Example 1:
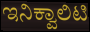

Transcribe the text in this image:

ಇನಿಕ್ವಾಲಿಟಿ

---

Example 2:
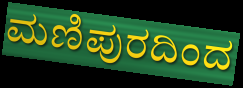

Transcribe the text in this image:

ಮಣಿಪುರದಿಂದ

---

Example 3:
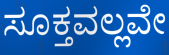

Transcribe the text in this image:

ಸೂಕ್ತವಲ್ಲವೇ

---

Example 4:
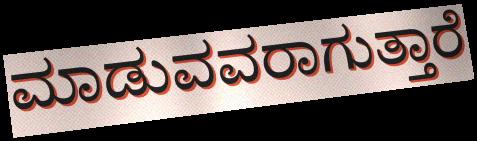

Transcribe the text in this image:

ಮಾಡುವವರಾಗುತ್ತಾರೆ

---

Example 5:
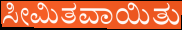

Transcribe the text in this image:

ಸೀಮಿತವಾಯಿತು